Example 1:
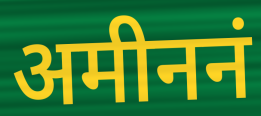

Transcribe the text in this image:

अमीननं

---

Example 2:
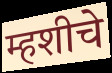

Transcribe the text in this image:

म्हशीचे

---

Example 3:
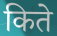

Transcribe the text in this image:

किते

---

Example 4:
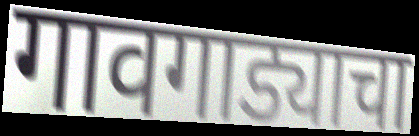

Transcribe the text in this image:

गावगाड्याचा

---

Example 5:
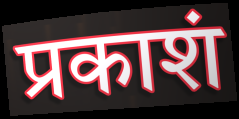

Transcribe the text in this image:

प्रकाशं